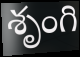
శృంగి